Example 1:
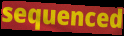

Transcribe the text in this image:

sequenced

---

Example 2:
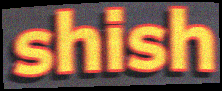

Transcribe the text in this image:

shish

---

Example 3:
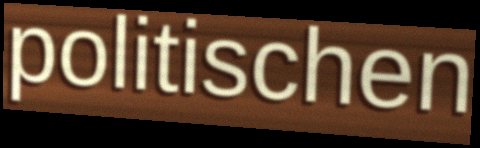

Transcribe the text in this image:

politischen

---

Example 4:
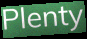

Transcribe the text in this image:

Plenty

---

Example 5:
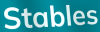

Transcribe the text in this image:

Stables